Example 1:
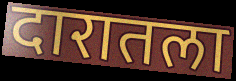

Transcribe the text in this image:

दारातला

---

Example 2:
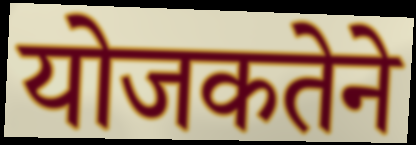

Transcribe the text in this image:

योजकतेने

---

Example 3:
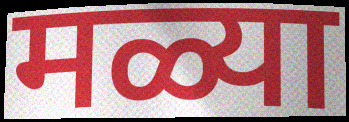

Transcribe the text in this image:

मळ्या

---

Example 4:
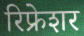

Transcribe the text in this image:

रिफ्रेशर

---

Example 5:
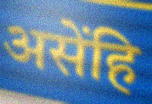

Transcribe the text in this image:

असेंहि